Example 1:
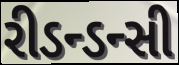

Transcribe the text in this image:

રીડન્ડન્સી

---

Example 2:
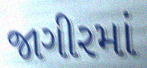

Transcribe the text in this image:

જાગીરમાં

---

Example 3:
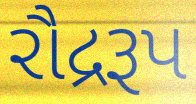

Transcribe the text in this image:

રૌદ્રરૂપ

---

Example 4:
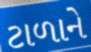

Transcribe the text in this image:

ટાળાને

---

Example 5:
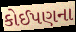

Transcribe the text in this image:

કોઈપણના